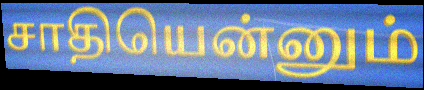
சாதியென்னும்